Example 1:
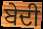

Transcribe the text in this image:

ਬੇਦੀ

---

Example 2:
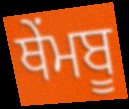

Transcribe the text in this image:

ਥੇਂਮਬੂ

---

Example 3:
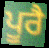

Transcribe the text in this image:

ਪੂਰੈ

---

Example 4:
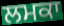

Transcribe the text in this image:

ਲਮਕਾ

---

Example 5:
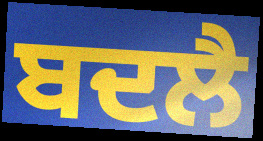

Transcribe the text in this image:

ਬਦਲੈ